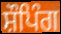
ਸ਼ੌਪਿੰਗ